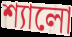
শ্যালো